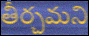
తీర్చమని